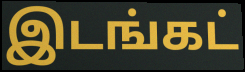
இடங்கட்